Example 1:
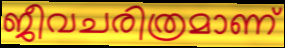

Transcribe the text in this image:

ജീവചരിത്രമാണ്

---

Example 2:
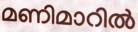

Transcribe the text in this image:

മണിമാറിൽ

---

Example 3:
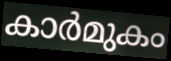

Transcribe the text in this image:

കാർമുകം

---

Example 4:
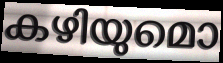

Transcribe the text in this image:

കഴിയുമൊ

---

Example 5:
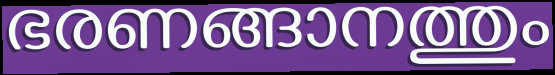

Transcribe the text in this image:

ഭരണങ്ങാനത്തും